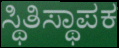
ಸ್ಥಿತಿಸ್ಥಾಪಕ